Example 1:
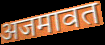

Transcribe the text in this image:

अजमावत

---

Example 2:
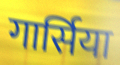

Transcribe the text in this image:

गार्सिया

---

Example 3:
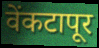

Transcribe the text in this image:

वेंकटापूर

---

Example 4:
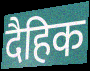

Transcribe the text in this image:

दैहिक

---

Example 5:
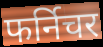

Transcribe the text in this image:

फर्निचर